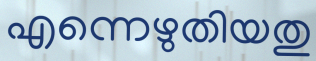
എന്നെഴുതിയതു